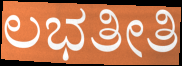
ಲಭತೀತಿ